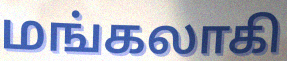
மங்கலாகி